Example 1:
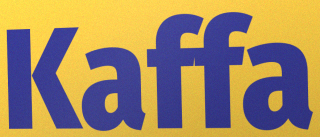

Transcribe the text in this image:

Kaffa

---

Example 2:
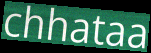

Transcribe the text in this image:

chhataa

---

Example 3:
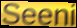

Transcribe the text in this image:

Seeni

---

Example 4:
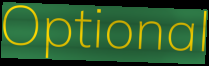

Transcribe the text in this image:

Optional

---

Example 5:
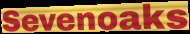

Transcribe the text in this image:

Sevenoaks